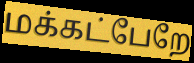
மக்கட்பேறே